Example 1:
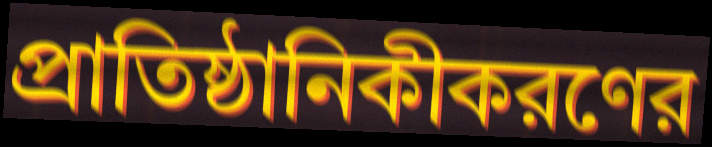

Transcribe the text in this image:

প্রাতিষ্ঠানিকীকরণের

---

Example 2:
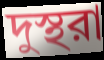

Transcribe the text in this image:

দুস্থরা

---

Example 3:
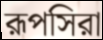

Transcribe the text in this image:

রূপসিরা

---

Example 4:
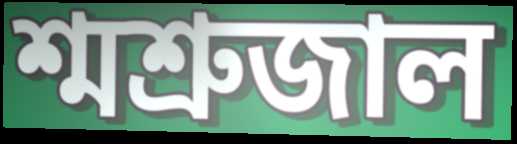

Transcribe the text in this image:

শ্মশ্রুজাল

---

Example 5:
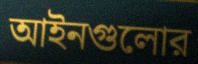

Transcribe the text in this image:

আইনগুলোর